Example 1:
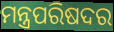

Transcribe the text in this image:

ମନ୍ତ୍ରପରିଷଦର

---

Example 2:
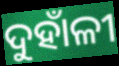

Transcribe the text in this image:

ଦୁହାଁଳୀ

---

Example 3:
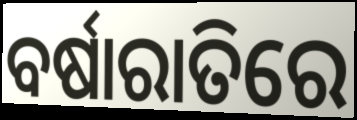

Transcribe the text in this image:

ବର୍ଷାରାତିରେ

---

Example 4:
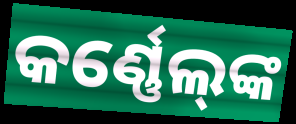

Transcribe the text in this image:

କର୍ଣ୍ଣେଲ୍‌ଙ୍କ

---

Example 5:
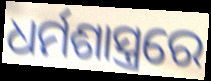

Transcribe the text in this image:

ଧର୍ମଶାସ୍ତ୍ରରେ